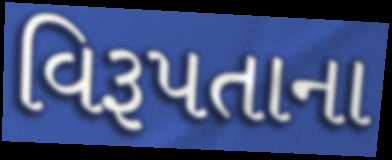
વિરૂપતાના